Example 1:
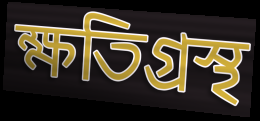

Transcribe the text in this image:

ক্ষতিগ্ৰস্থ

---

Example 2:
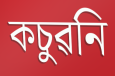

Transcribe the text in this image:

কচুৱনি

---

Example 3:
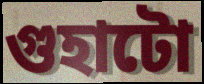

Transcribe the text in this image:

গুহাটো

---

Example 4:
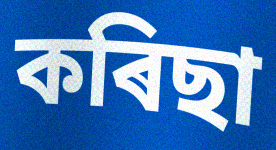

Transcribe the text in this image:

কৰিছা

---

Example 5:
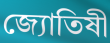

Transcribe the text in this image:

জ্যোতিষী